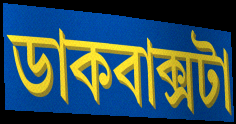
ডাকবাক্সটা